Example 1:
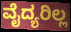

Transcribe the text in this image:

ವೈದ್ಯರಿಲ್ಲ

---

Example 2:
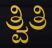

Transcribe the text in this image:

ತ್ವಿತಿ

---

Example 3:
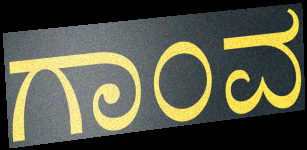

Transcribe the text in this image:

ಗಾಂವ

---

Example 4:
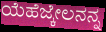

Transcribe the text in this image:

ಯೆಹೆಜ್ಕೇಲನನ್ನ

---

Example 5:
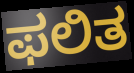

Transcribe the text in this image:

ಫಲಿತ